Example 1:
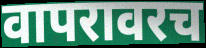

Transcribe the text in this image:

वापरावरच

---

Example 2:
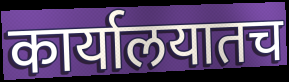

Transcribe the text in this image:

कार्यालयातच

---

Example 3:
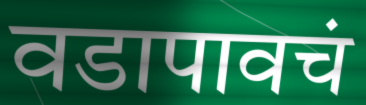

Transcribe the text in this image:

वडापावचं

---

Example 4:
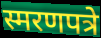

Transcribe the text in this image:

स्मरणपत्रे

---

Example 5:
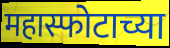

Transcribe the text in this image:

महास्फोटाच्या